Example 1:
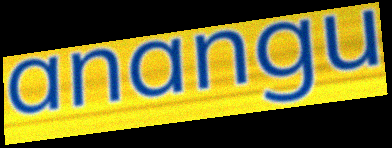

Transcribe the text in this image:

anangu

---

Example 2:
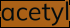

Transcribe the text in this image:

acetyl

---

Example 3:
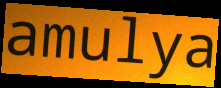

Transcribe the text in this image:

amulya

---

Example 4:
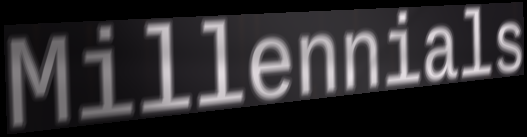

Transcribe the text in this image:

Millennials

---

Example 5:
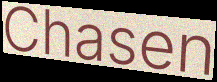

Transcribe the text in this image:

Chasen